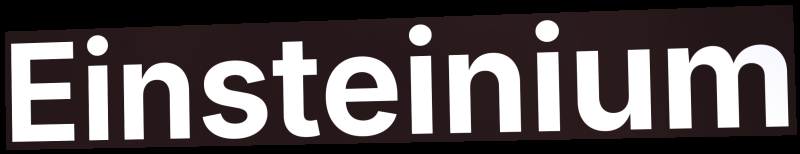
Einsteinium